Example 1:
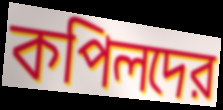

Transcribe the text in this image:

কপিলদের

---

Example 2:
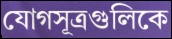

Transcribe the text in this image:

যোগসূত্রগুলিকে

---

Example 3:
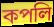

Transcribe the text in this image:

কপলি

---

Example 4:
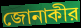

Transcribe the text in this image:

জোনাকীর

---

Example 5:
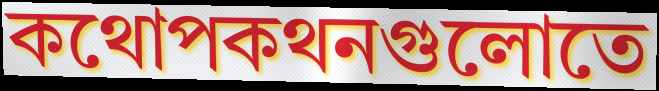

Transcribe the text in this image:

কথোপকথনগুলোতে